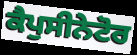
ਕੈਪੁਸੀਨੇਟੋਰ